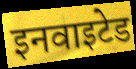
इनवाइटेड